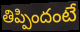
తిప్పిందంటే